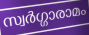
സ്വർഗ്ഗാരാമം